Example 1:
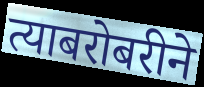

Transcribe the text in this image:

त्याबरोबरीने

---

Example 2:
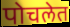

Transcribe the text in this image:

पोचलेत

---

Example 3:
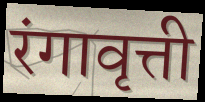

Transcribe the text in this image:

रंगावृत्ती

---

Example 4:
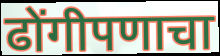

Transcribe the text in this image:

ढोंगीपणाचा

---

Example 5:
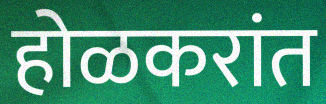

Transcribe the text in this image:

होळकरांत